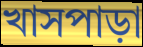
খাসপাড়া